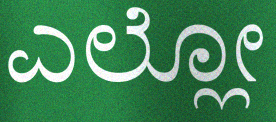
ಎಲ್ಲೋ